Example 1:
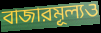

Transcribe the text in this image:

বাজারমূল্যও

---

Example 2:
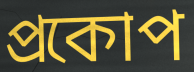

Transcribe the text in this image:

প্রকোপ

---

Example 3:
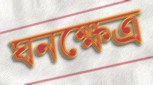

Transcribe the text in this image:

ঘনক্ষেত্র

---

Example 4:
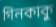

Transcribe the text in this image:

গিনকাকু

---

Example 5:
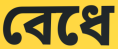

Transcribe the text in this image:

বেধে